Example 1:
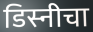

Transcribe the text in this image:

डिस्नीचा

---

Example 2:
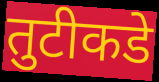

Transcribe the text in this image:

तुटीकडे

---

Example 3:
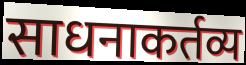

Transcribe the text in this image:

साधनाकर्तव्य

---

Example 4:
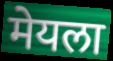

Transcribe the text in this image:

मेयला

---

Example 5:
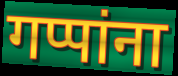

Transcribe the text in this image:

गप्पांना